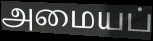
அமையப்